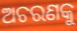
ଅଚରଣକୁ